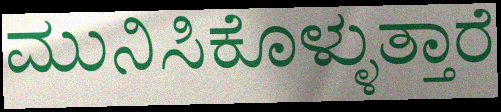
ಮುನಿಸಿಕೊಳ್ಳುತ್ತಾರೆ